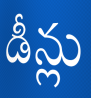
డీన్లు